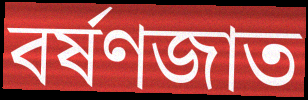
বর্ষণজাত